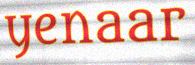
yenaar